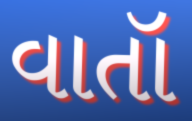
વાતૉ